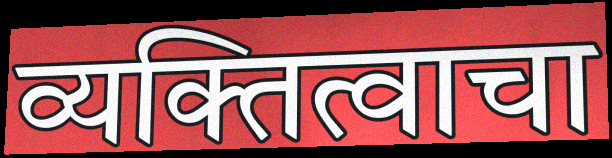
व्यक्तित्वाचा